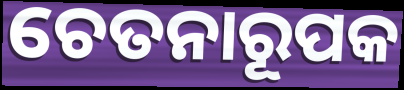
ଚେତନାରୂପକ